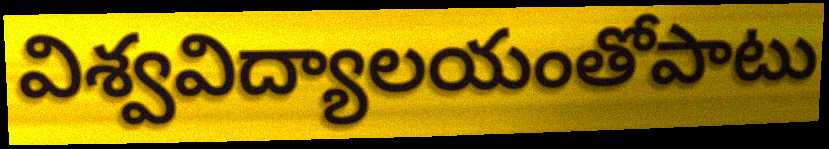
విశ్వవిద్యాలయంతోపాటు